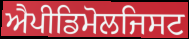
ਐਪੀਡਿਮੋਲਜਿਸਟ